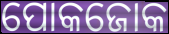
ପୋକଜୋକ